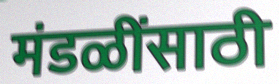
मंडळींसाठी